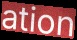
ation